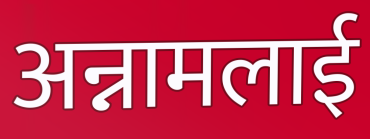
अन्नामलाई